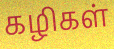
கழிகள்